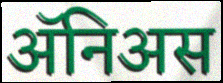
ॲनिअस